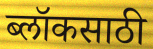
ब्लॉकसाठी